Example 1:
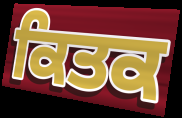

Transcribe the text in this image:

ਕਿਤਕ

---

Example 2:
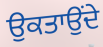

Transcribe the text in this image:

ਉਕਤਾਉਂਦੇ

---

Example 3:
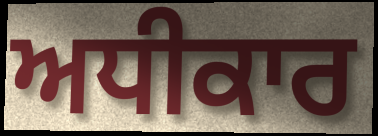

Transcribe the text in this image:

ਅਧੀਕਾਰ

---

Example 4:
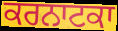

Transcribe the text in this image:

ਕਰਨਾਟਕਾ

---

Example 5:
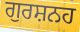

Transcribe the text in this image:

ਗੁਰਸ਼ਨਹ